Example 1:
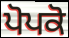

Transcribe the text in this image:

ਪੋਪਕੋ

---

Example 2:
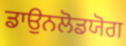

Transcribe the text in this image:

ਡਾਉਨਲੋਡਯੋਗ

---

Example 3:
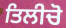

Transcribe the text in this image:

ਤਿਲੀਚੋ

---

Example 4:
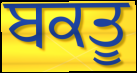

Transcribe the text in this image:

ਬਕਤੂ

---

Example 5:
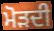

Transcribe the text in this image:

ਮੋੜਦੀ